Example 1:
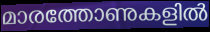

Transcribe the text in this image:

മാരത്തോണുകളിൽ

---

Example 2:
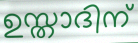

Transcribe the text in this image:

ഉസ്താദിന്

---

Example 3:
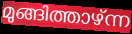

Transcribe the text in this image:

മുങ്ങിത്താഴ്ന്ന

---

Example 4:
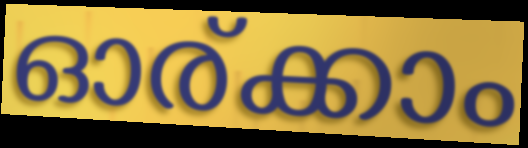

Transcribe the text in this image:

ഓര്ക്കാം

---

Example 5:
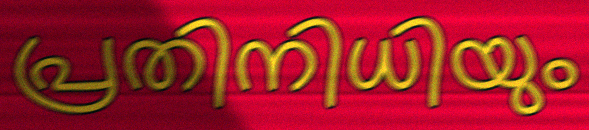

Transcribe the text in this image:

പ്രതിനിധിയും